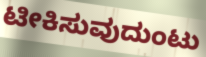
ಟೀಕಿಸುವುದುಂಟು